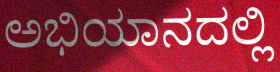
ಅಭಿಯಾನದಲ್ಲಿ